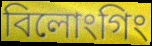
বিলোংগিং